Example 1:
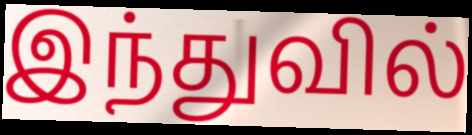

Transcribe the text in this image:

இந்துவில்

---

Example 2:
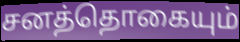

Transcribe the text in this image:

சனத்தொகையும்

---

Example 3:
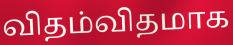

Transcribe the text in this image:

விதம்விதமாக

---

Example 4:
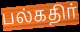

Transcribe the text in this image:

பல்கதிர்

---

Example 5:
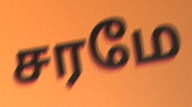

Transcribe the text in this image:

சரமே